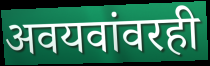
अवयवांवरही